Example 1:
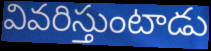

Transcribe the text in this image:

వివరిస్తుంటాడు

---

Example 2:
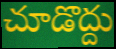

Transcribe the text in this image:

చూడొద్దు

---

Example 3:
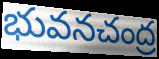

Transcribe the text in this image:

భువనచంద్ర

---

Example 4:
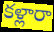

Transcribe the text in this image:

కళ్లారా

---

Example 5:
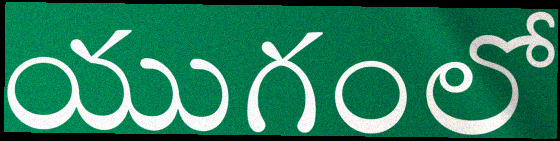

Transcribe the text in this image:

యుగంలో